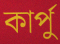
কার্পু